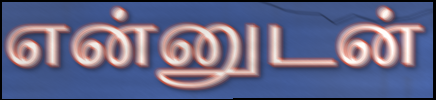
என்னுடன்